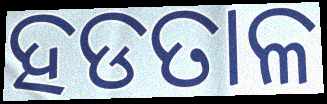
ହଡତାଳ